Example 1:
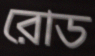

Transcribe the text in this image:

রোড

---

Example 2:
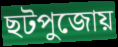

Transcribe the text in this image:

ছটপুজোয়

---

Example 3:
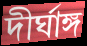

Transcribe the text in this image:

দীর্ঘাঙ্গ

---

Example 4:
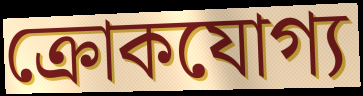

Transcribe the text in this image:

ক্রোকযোগ্য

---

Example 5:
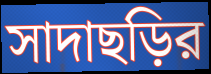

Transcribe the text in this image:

সাদাছড়ির